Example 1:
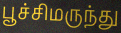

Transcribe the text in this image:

பூச்சிமருந்து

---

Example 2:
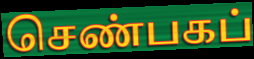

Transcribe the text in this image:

செண்பகப்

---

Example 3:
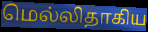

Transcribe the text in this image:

மெல்லிதாகிய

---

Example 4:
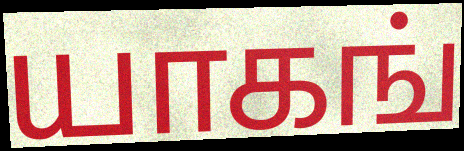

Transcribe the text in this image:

யாகங்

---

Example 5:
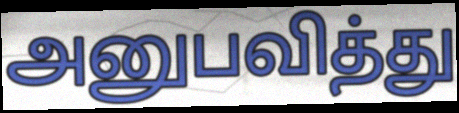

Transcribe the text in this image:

அனுபவித்து